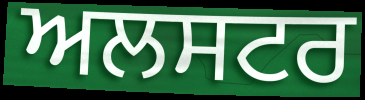
ਅਲਸਟਰ